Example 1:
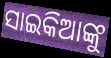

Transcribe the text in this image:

ସାଇକିଆଙ୍କୁ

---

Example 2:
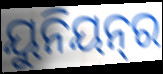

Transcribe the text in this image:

ୟୁନିୟନ୍‌ର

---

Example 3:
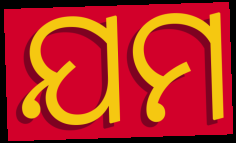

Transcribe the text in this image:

ଯମ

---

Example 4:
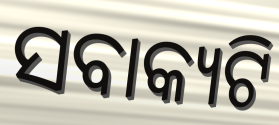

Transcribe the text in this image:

ସବାକ୍ୟଟି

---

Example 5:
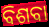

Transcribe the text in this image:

ବିଶବା